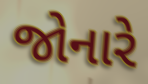
જોનારે